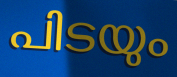
പിടയും